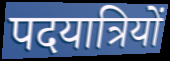
पदयात्रियों